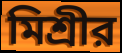
মিশ্রীর